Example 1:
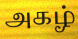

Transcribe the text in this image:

அகழ்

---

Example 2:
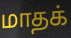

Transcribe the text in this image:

மாதக்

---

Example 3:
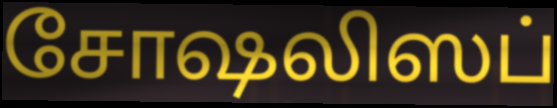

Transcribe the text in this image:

சோஷலிஸப்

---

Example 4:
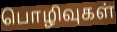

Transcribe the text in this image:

பொழிவுகள்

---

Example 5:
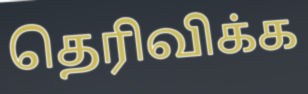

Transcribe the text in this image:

தெரிவிக்க